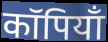
कॉपियाँ